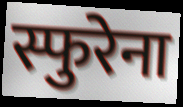
स्फुरेना